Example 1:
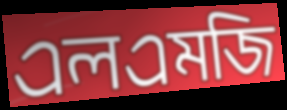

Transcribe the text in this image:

এলএমজি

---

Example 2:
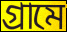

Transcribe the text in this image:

গ্রামে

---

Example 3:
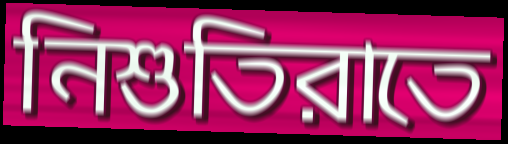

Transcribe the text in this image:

নিশুতিরাতে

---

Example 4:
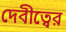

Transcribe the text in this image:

দেবীত্বের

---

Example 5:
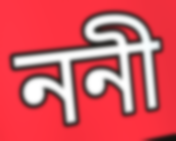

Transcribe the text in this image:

ননী